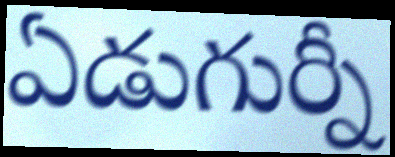
ఏడుగుర్నీ